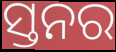
ସ୍ତନର